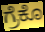
ಗ್ರೆಕೊ